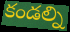
కండల్ని